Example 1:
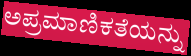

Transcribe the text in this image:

ಅಪ್ರಮಾಣಿಕತೆಯನ್ನು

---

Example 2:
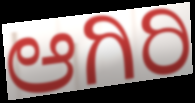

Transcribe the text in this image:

ಆಗಿರಿ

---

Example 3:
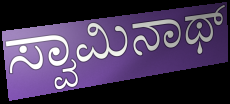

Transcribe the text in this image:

ಸ್ವಾಮಿನಾಥ್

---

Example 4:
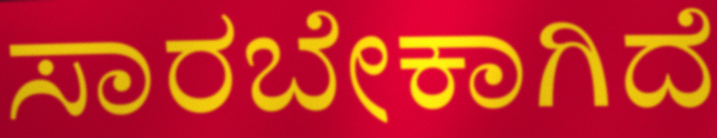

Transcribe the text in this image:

ಸಾರಬೇಕಾಗಿದೆ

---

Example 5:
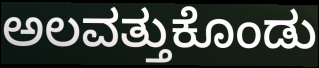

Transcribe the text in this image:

ಅಲವತ್ತುಕೊಂಡು